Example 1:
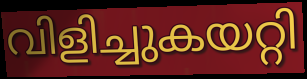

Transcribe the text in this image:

വിളിച്ചുകയറ്റി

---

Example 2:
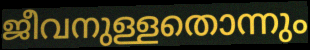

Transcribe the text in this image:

ജീവനുള്ളതൊന്നും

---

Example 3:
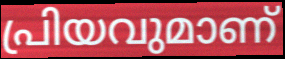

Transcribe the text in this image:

പ്രിയവുമാണ്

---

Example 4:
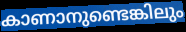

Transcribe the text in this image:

കാണാനുണ്ടെങ്കിലും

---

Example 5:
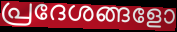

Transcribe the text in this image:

പ്രദേശങ്ങളോ